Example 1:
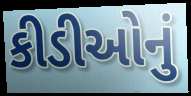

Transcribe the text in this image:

કીડીઓનું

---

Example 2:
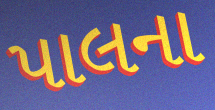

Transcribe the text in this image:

પાલના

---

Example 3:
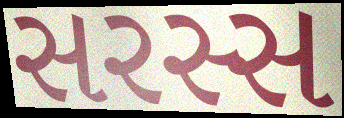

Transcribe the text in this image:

સરસ્સ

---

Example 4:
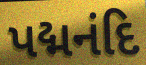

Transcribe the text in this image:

પદ્મનંદિ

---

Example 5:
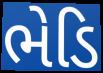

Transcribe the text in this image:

ભેડિ